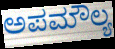
ಅಪಮೌಲ್ಯ